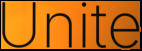
Unite